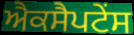
ਐਕਸੈਪਟੇਂਸ